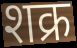
शक्र